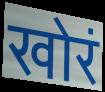
खोरं